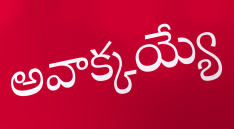
అవాక్కయ్యే